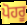
ਪੋਹਰੂ